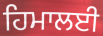
ਹਿਮਾਲਈ